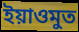
ইয়াওমুত